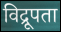
विद्रूपता